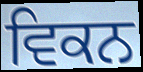
ਵਿਕਨ